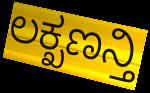
ಲಕ್ಖಣನ್ತಿ